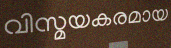
വിസ്മയകരമായ